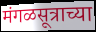
मंगळसूत्राच्या